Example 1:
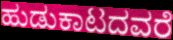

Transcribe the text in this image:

ಹುಡುಕಾಟದವರೆ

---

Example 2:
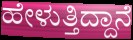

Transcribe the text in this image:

ಹೇಳುತ್ತಿದ್ದಾನೆ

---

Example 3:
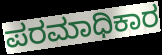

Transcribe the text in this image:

ಪರಮಾಧಿಕಾರ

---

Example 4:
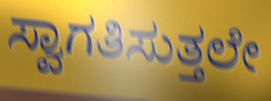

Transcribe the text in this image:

ಸ್ವಾಗತಿಸುತ್ತಲೇ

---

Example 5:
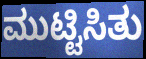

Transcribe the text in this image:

ಮುಟ್ಟಿಸಿತು